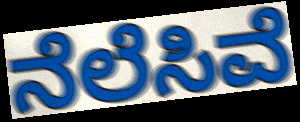
ನೆಲೆಸಿವೆ